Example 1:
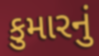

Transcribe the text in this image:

કુમારનું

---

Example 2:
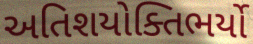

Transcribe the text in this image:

અતિશયોક્તિભર્યો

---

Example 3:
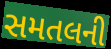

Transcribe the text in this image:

સમતલની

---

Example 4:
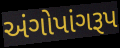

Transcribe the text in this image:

અંગોપાંગરૂપ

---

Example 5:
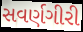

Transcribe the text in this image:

સવર્ણગીરી